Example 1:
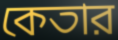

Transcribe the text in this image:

কেতার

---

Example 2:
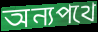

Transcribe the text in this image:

অন্যপথে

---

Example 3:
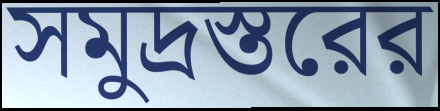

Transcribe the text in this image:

সমুদ্রস্তরের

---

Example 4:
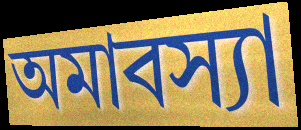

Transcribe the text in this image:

অমাবস্যা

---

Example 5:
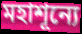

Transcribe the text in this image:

মহাশূন্যে